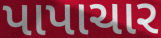
પાપાચાર